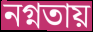
নগ্নতায়